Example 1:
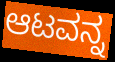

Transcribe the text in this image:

ಆಟವನ್ನ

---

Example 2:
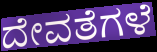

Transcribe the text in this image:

ದೇವತೆಗಳೆ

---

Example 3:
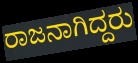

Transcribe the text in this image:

ರಾಜನಾಗಿದ್ದರು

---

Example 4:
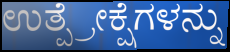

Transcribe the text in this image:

ಉತ್ಪ್ರೇಕ್ಷೆಗಳನ್ನು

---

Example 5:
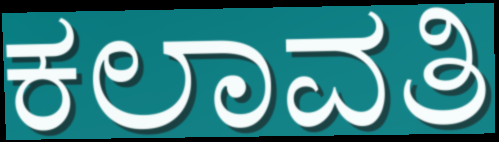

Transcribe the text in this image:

ಕಲಾವತಿ